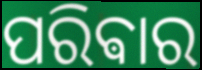
ପରିଵାର